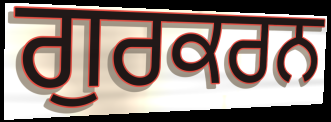
ਗੁਰਕਰਨ